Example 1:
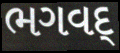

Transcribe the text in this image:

ભગવદ્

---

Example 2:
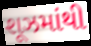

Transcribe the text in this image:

શૂઝમાંથી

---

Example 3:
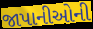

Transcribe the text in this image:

જાપાનીઓની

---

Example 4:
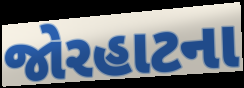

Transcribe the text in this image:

જોરહાટના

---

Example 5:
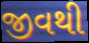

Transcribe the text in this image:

જીવથી